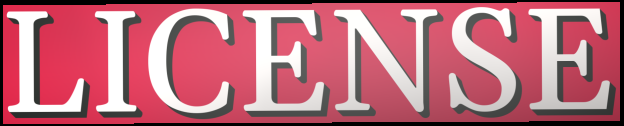
LICENSE